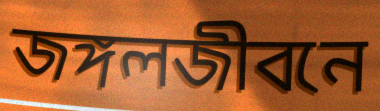
জঙ্গলজীবনে